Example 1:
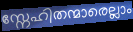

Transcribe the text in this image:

സ്നേഹിതന്മാരെല്ലാം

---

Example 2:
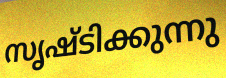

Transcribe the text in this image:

സൃഷ്ടിക്കുന്നു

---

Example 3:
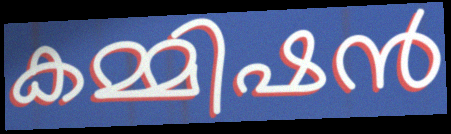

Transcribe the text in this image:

കമ്മിഷൻ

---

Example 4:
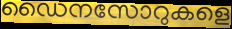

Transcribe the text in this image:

ഡൈനസോറുകളെ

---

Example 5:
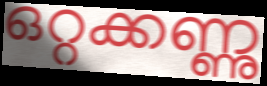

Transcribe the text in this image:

ഒറ്റക്കണ്ണു